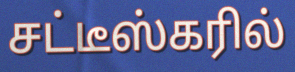
சட்டீஸ்கரில்